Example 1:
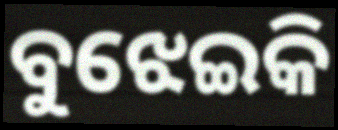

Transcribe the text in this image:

ବୁଝେଇକି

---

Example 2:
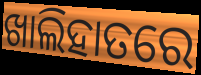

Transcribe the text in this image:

ଖାଲିହାତରେ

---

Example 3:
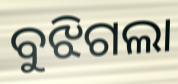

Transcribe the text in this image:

ବୁଝିଗଲା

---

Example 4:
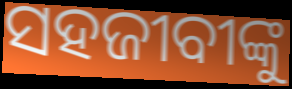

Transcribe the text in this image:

ସହଜୀବୀଙ୍କୁ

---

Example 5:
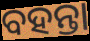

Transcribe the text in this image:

ବହନ୍ତା